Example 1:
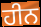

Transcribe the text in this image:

ਹੀਨ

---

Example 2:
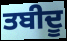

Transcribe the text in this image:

ਤਬੀਦੂ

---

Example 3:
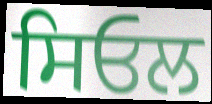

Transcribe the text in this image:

ਸਿਓਲ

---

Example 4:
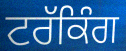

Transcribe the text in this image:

ਟਰੱਕਿੰਗ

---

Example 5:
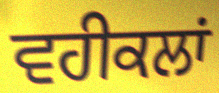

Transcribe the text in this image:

ਵਹੀਕਲਾਂ